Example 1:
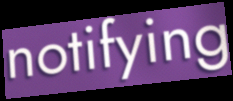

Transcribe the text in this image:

notifying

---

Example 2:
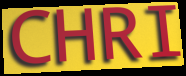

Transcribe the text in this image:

CHRI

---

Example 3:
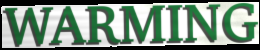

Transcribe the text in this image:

WARMING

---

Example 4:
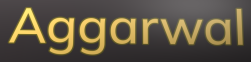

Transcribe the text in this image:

Aggarwal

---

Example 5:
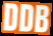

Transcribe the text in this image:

DDB